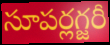
సూపర్లగ్జరీ